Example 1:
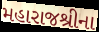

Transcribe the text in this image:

મહારાજશ્રીના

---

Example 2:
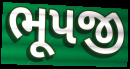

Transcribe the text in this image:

ભૂપજી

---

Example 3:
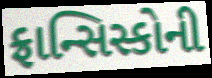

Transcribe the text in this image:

ફ્રાન્સિસ્કોની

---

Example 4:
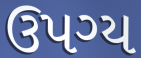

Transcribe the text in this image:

ઉપગ્ય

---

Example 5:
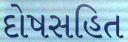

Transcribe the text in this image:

દોષસહિત